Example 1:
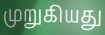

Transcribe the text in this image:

முறுகியது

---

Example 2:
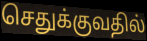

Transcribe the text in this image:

செதுக்குவதில்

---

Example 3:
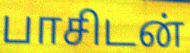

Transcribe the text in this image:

பாசிடன்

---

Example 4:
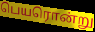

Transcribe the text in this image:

பெயரொன்று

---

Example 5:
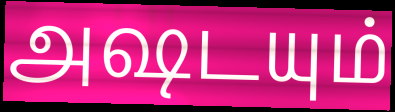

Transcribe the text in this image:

அஷடயும்